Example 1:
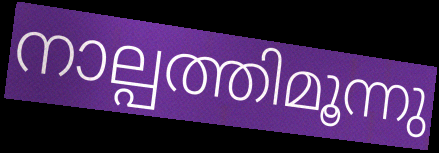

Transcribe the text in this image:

നാല്പത്തിമൂന്നു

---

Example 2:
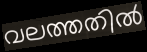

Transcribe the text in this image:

വലത്തതിൽ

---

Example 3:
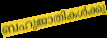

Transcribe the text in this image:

ബഹുജാതികൾക്കു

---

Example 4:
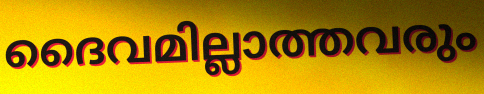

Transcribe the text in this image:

ദൈവമില്ലാത്തവരും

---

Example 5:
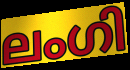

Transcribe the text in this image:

ലംഗി